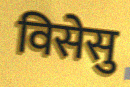
विसेसु